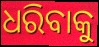
ଧରିବାକୁ